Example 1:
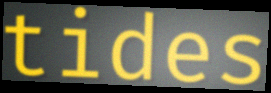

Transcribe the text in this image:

tides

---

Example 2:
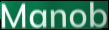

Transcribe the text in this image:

Manob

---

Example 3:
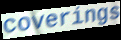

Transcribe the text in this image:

coverings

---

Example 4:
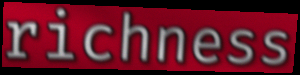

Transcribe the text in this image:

richness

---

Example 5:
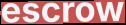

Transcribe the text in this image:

escrow